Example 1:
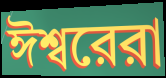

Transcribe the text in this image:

ঈশ্বরেরা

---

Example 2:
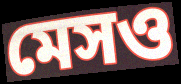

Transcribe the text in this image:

মেসও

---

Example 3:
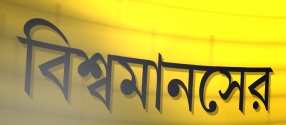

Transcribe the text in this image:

বিশ্বমানসের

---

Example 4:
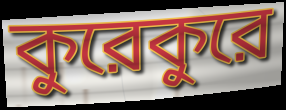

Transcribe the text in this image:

কুরেকুরে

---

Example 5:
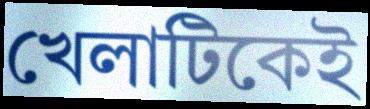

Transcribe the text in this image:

খেলাটিকেই